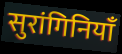
सुरांगिनियाँ